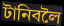
টানিবলৈ